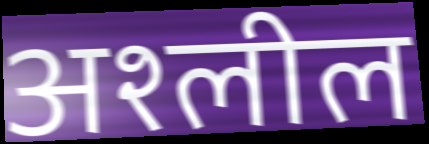
अश्लील